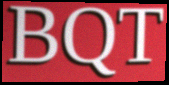
BQT